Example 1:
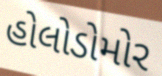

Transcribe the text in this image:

હોલોડોમોર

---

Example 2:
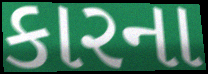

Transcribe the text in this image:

કારના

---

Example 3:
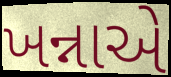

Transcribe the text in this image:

ખન્નાએ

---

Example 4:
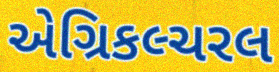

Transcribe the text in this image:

એગ્રિકલ્ચરલ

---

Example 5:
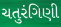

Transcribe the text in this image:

ચતુરંગિણી